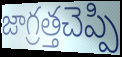
జాగ్రత్తచెప్పి